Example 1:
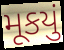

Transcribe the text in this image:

મૂકયું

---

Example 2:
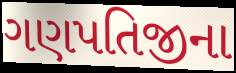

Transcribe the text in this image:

ગણપતિજીના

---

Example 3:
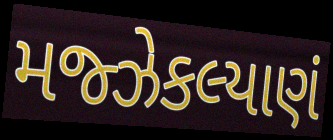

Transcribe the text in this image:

મજ્ઝેકલ્યાણં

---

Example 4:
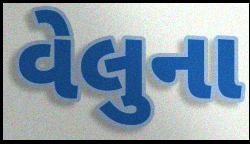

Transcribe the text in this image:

વેલુના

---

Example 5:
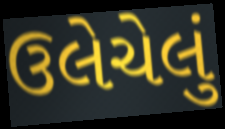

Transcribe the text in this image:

ઉલેચેલું